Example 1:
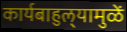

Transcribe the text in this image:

कार्यबाहुल्यामुळें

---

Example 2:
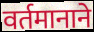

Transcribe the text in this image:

वर्तमानाने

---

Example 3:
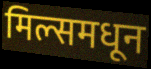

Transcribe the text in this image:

मिल्समधून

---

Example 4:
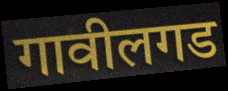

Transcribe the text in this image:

गावीलगड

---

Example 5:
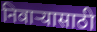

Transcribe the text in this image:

निवाऱ्यासाठी